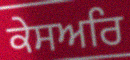
ਕੇਸਅਰਿ